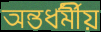
অন্তর্ধর্মীয়